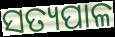
ସତ୍ୟପାଳ